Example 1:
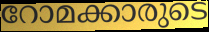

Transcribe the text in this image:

റോമക്കാരുടെ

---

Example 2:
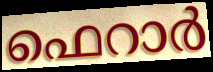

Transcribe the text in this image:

ഫെറാർ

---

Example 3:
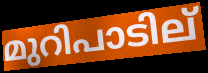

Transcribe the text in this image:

മുറിപാടില്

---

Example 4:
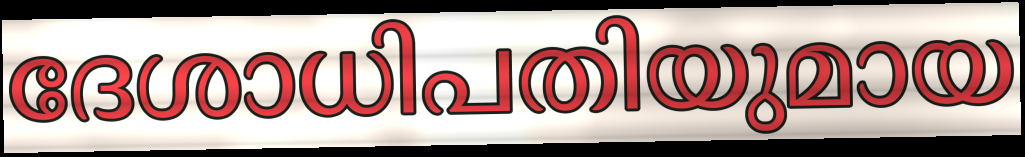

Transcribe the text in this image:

ദേശാധിപതിയുമായ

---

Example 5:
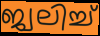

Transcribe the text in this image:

ജ്വലിച്ച്